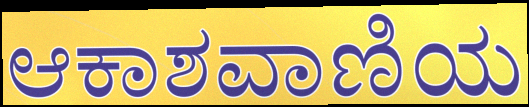
ಆಕಾಶವಾಣಿಯ